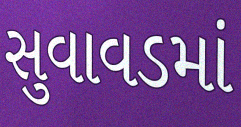
સુવાવડમાં